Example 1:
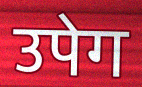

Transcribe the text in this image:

उपेग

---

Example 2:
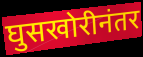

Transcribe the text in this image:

घुसखोरीनंतर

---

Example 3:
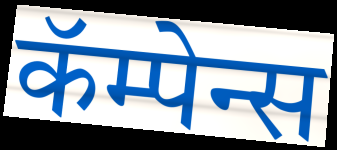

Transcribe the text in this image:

कॅम्पेन्स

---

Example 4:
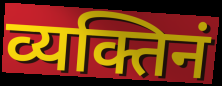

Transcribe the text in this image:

व्यक्तिनं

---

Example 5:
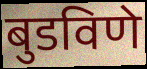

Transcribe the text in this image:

बुडविणे